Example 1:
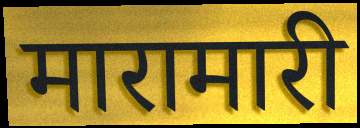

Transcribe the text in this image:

मारामारी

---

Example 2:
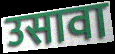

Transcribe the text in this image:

उसावा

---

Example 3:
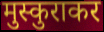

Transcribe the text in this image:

मुस्कुराकर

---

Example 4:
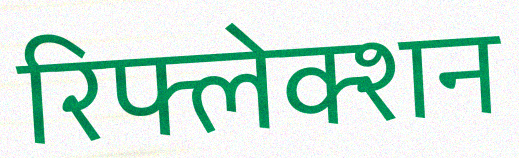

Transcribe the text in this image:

रिफ्लेक्शन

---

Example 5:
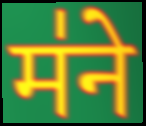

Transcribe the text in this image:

म॑ने